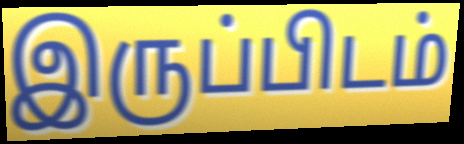
இருப்பிடம்